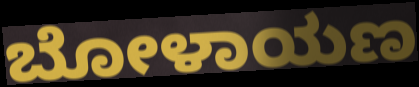
ಬೋಳಾಯಣ